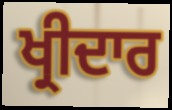
ਖ੍ਰੀਦਾਰ